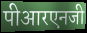
पीआरएनजी